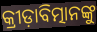
କ୍ରୀଡ଼ାବିତ୍ମାନଙ୍କୁ